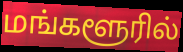
மங்களூரில்